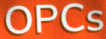
OPCs